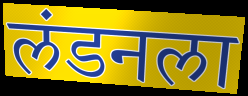
लंडनला